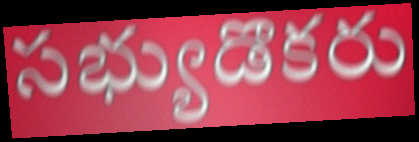
సభ్యుడొకరు